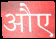
औए